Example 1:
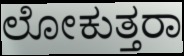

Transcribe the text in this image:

ಲೋಕುತ್ತರಾ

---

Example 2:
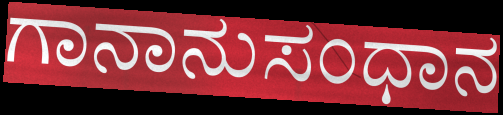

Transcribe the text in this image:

ಗಾನಾನುಸಂಧಾನ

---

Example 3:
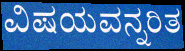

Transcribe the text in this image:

ವಿಷಯವನ್ನರಿತ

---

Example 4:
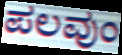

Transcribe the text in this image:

ಪಲವುಂ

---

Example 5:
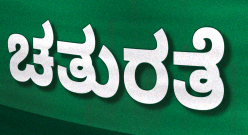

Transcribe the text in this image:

ಚತುರತೆ